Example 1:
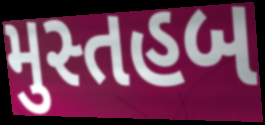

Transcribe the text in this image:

મુસ્તહબ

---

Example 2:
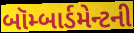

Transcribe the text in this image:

બૉમ્બાર્ડમેન્ટની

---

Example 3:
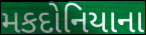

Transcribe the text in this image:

મકદોનિયાના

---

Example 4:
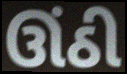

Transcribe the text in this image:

ઊંઠી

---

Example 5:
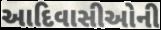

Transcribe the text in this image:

આદિવાસીઓની